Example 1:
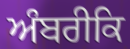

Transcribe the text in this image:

ਅੰਬਰੀਕਿ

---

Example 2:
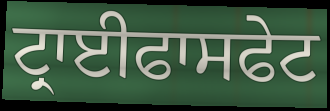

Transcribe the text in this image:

ਟ੍ਰਾਈਫਾਸਫੇਟ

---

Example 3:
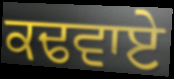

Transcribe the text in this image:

ਕਢਵਾਏ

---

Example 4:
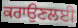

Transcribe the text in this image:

ਕਰਾਉਣਲਈ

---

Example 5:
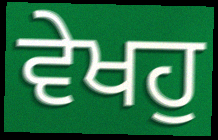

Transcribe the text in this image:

ਵੇਖਹੁ